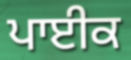
ਪਾਈਕ